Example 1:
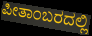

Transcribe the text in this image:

ಪೀತಾಂಬರದಲ್ಲಿ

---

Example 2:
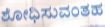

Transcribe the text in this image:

ಶೋಧಿಸುವಂತಹ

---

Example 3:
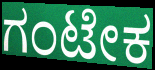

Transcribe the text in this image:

ಗಂಟೇಕ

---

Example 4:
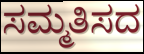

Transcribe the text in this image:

ಸಮ್ಮತಿಸದ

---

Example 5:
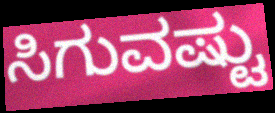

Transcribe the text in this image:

ಸಿಗುವಷ್ಟು